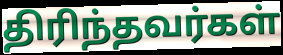
திரிந்தவர்கள்